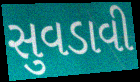
સુવડાવી